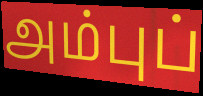
அம்புப்